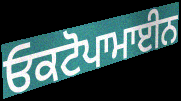
ਓਕਟੋਪਾਮਾਈਨ